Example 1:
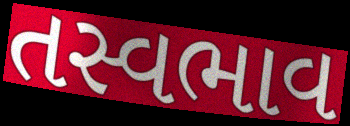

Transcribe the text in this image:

તસ્વભાવ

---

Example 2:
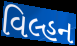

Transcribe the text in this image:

વિલ્હન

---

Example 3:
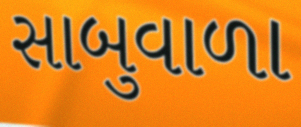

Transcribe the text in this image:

સાબુવાળા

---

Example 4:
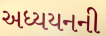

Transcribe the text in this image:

અધ્યયનની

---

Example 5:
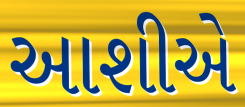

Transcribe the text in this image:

આશીએ